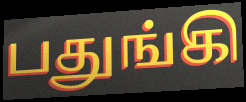
பதுங்கி